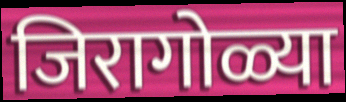
जिरागोळ्या